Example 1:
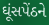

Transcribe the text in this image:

ઘૂંસપેંઠને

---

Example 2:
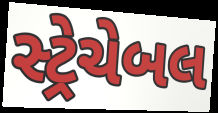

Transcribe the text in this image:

સ્ટ્રેચેબલ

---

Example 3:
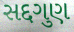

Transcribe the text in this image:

સદ્દગુણ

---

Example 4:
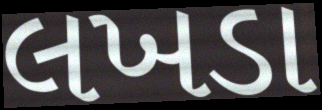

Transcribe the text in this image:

લખડા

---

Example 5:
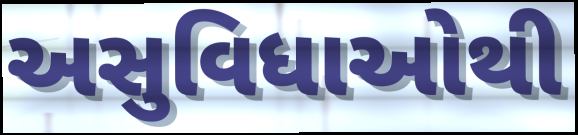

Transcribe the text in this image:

અસુવિધાઓથી